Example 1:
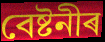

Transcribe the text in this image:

বেষ্টনীৰ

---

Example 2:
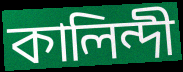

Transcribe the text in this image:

কালিন্দী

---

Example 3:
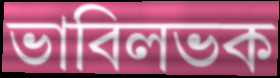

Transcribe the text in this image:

ভাবিলভক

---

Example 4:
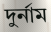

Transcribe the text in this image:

দুৰ্নাম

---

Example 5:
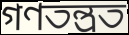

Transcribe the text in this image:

গণতন্ত্ৰত